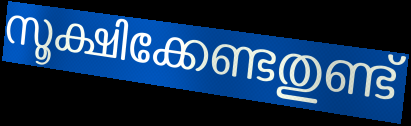
സൂക്ഷിക്കേണ്ടതുണ്ട്